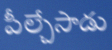
పీల్చేసాడు